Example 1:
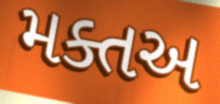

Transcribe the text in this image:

મક્તઅ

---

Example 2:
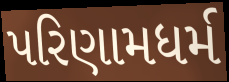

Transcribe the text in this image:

પરિણામધર્મ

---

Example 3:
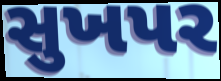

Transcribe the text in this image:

સુખપર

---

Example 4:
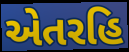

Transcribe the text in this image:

એતરહિ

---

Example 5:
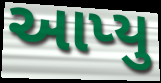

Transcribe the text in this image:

આપ્યુ